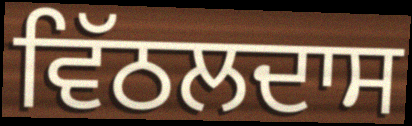
ਵਿੱਠਲਦਾਸ